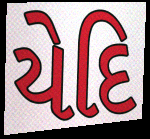
યેદિ